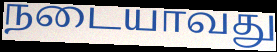
நடையாவது